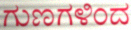
ಗುಣಗಳಿಂದ